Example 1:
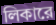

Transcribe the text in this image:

লিকারে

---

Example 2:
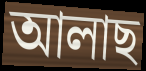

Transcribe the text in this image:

আলাছ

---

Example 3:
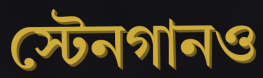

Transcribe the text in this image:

স্টেনগানও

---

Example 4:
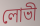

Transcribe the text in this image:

লোভী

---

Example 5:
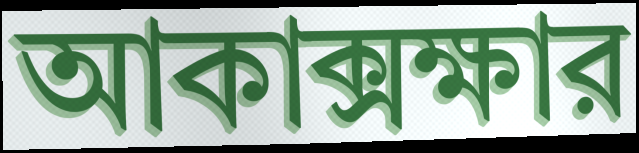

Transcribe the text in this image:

আকাক্সক্ষার